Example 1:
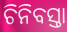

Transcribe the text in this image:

ଚିନିବସ୍ତା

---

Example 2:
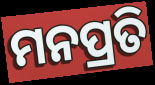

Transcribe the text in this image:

ମନପ୍ରତି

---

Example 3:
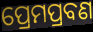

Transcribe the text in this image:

ପ୍ରେମପ୍ରବଣ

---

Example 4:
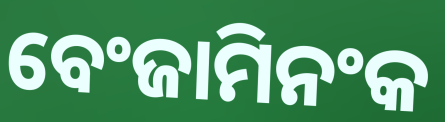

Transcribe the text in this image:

ବେଂଜାମିନଂକ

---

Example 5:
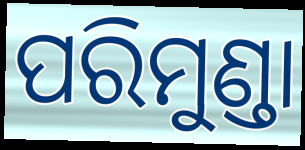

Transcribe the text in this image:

ପରିମୁଣ୍ଡା